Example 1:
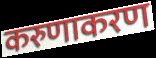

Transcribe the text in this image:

करुणाकरण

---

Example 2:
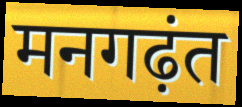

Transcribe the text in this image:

मनगढ़ंत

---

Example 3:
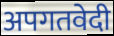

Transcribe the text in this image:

अपगतवेदी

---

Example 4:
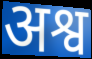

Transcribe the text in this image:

अश्व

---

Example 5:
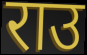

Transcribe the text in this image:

राउ